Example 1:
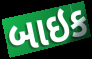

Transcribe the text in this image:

બાઇક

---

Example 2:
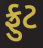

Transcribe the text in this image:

ફ્રુટ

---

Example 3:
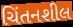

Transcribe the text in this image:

ચિંતનશીલ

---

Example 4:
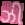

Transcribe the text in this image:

ઝી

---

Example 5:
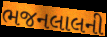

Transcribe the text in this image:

ભજનલાલની